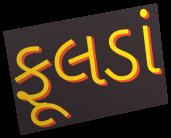
ફૂલડાં